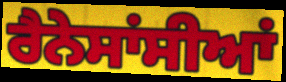
ਰੈਨੇਸਾਂਸੀਆਂ